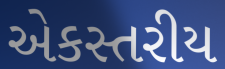
એકસ્તરીય